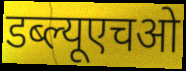
डब्ल्यूएचओ